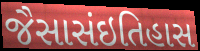
જૈસાસંઇતિહાસ